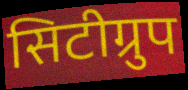
सिटीग्रुप